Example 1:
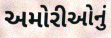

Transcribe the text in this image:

અમોરીઓનું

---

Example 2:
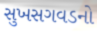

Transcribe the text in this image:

સુખસગવડનો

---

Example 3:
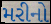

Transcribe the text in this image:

મરીનો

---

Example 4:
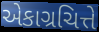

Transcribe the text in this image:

એકાગ્રચિત્તે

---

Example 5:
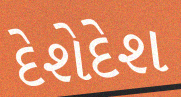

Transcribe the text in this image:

દેશેદેશ